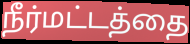
நீர்மட்டத்தை